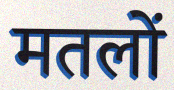
मतलों